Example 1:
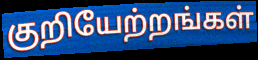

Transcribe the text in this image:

குறியேற்றங்கள்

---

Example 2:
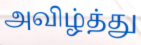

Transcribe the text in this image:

அவிழ்த்து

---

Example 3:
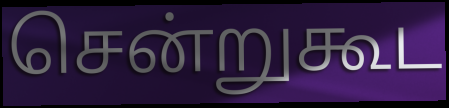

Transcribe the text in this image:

சென்றுகூட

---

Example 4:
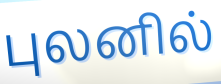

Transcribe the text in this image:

புலனில்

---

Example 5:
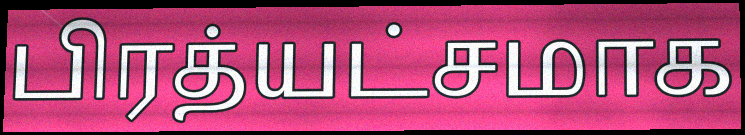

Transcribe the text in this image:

பிரத்யட்சமாக